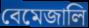
বেমেজালি